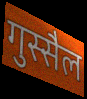
गुस्सैल